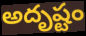
అదృష్టం